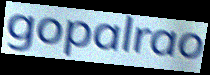
gopalrao